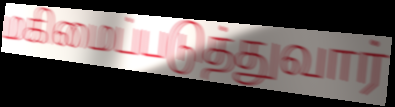
மகிமைப்படுத்துவார்